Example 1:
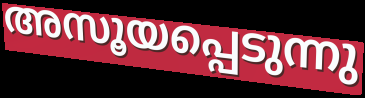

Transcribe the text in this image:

അസൂയപ്പെടുന്നു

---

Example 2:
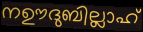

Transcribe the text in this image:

നഊദുബില്ലാഹ്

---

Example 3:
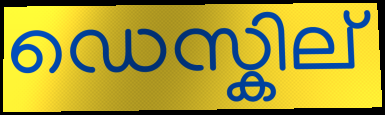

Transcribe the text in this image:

ഡെസ്കില്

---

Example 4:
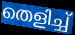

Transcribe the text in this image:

തെളിച്ച്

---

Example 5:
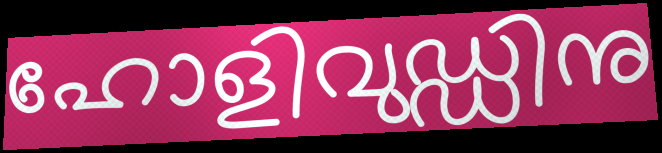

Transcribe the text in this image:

ഹോളിവുഡ്ഡിനു